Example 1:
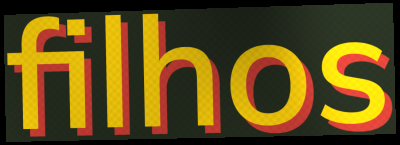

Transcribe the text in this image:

filhos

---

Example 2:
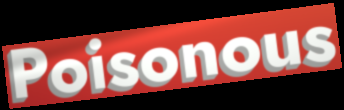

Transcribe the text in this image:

Poisonous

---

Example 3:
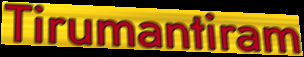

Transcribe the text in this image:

Tirumantiram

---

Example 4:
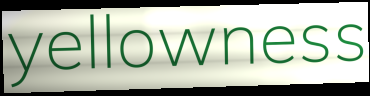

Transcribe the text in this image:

yellowness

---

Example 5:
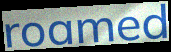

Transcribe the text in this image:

roamed